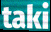
taki